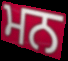
ਮਨ